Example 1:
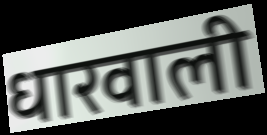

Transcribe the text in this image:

धारवाली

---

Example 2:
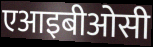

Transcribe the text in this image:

एआइबीओसी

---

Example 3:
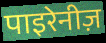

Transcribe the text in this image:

पाइरेनीज़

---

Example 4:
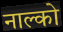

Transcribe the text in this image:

नाल्को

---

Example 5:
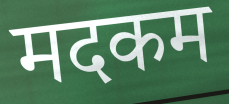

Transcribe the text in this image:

मदकम